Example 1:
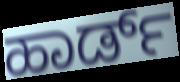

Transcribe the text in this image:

ಹಾರ್ಡ್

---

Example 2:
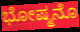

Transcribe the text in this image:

ಭೋಷ್ಮನೊ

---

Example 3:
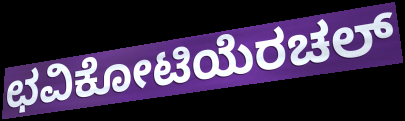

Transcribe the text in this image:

ಛವಿಕೋಟಿಯೆರಚಲ್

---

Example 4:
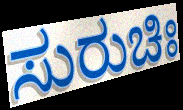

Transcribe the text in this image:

ಸುರುಚಿಃ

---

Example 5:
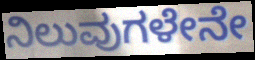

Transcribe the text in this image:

ನಿಲುವುಗಳೇನೇ